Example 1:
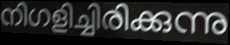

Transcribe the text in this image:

നിഗളിച്ചിരിക്കുന്നു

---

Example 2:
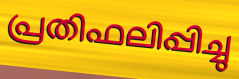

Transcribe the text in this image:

പ്രതിഫലിപ്പിച്ചു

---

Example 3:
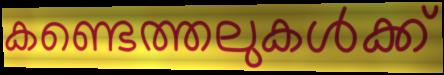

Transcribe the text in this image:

കണ്ടെത്തലുകൾക്ക്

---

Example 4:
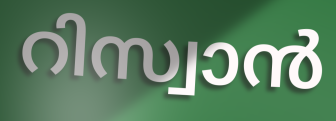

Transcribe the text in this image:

റിസ്വാൻ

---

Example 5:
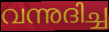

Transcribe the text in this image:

വന്നുദിച്ച